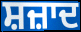
ਸ਼ਜ਼ਾਦ